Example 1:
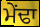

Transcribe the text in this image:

ਮੇਂਢਾ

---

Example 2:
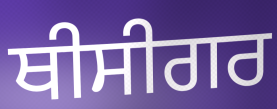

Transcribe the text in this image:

ਥੀਸੀਗਰ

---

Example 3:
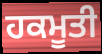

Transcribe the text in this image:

ਹਕਮੂਤੀ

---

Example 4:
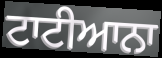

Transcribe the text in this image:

ਟਾਟੀਆਨਾ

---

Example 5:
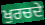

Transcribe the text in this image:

ਖੁਰਚਦੇ